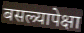
बसल्यापेक्षा